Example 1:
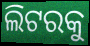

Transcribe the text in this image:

ଲିଟରକୁ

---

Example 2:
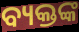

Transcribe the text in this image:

ବ୍ୟକ୍ତଙ୍କ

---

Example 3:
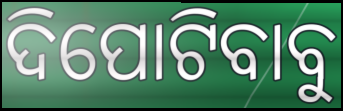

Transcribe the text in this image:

ଦିପୋଟିବାବୁ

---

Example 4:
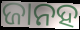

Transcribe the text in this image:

ଜାନହ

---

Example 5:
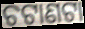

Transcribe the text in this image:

ଚଟାଣଟା